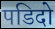
पडिदो